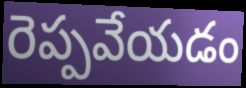
రెప్పవేయడం